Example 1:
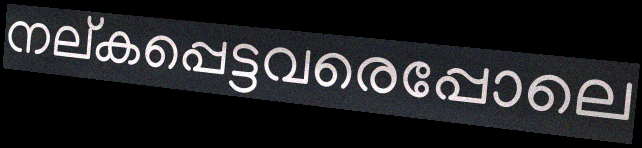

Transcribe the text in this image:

നല്കപ്പെട്ടവരെപ്പോലെ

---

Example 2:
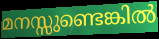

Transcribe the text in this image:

മനസ്സുണ്ടെങ്കിൽ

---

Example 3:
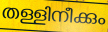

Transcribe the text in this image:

തള്ളിനീക്കും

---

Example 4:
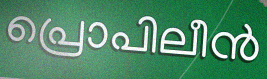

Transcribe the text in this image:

പ്രൊപിലീൻ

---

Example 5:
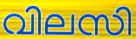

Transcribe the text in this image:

വിലസി